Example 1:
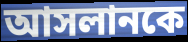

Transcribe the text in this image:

আসলানকে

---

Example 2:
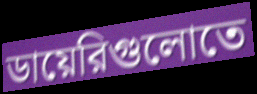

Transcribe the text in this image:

ডায়েরিগুলোতে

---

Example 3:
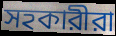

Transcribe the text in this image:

সহকারীরা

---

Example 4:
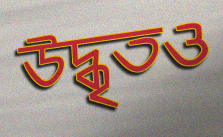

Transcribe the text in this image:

উদ্ধৃতও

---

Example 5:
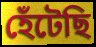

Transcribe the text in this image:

হেঁটেছি